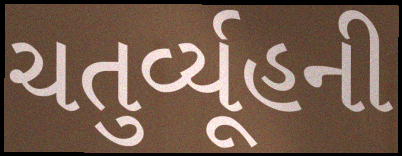
ચતુર્વ્યૂહની